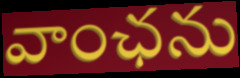
వాంఛను